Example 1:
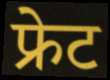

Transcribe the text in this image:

फ्रेट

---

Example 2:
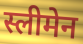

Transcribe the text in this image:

स्लीमेन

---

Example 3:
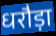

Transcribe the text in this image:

धरौड़ा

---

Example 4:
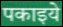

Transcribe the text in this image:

पकाइये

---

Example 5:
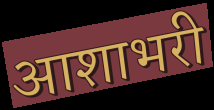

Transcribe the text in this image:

आशाभरी